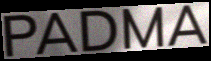
PADMA